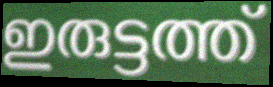
ഇരുട്ടത്ത്